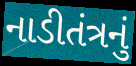
નાડીતંત્રનું